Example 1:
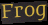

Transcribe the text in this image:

Frog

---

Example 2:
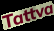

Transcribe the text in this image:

Tattva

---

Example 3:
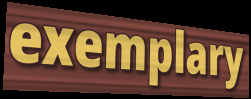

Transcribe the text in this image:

exemplary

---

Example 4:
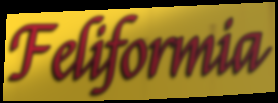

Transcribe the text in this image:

Feliformia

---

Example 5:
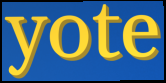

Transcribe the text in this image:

yote